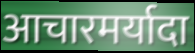
आचारमर्यादा